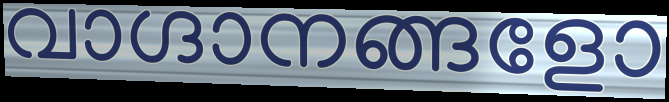
വാഗ്ദാനങ്ങളോ